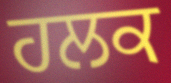
ਹਲਕ